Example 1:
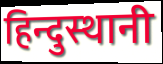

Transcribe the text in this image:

हिन्दुस्थानी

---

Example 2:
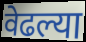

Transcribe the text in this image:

वेढल्या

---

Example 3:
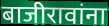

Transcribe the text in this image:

बाजीरावांना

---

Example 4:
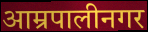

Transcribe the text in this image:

आम्रपालीनगर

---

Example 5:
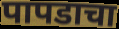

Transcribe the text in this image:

पापडाचा